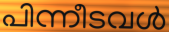
പിന്നീടവൾ